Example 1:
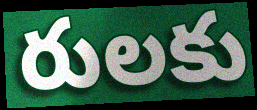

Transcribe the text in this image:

రులకు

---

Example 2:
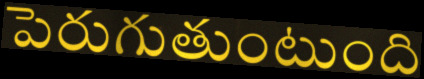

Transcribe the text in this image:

పెరుగుతుంటుంది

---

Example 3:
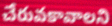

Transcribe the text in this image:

చేరువకావాలని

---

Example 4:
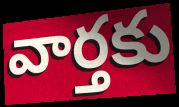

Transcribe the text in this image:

వార్తకు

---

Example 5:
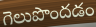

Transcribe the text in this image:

గెలుపొందడం